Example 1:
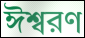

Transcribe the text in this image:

ঈশ্বরণ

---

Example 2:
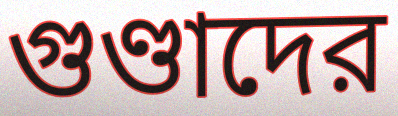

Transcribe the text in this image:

গুণ্ডাদের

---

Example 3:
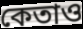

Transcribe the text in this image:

কেতাও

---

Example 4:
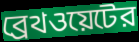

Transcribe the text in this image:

ব্রেথওয়েটের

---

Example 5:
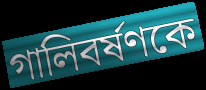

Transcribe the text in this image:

গালিবর্ষণকে